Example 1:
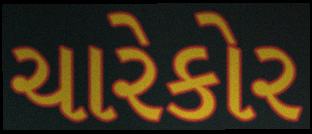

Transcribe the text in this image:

ચારેકોર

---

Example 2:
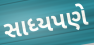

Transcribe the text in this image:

સાધ્યપણે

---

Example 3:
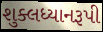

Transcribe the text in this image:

શુક્લધ્યાનરૂપી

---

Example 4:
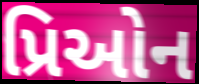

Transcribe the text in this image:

પ્રિઓન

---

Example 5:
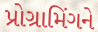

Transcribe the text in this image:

પ્રોગ્રામિંગને